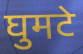
घुमटे